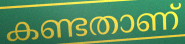
കണ്ടതാണ്